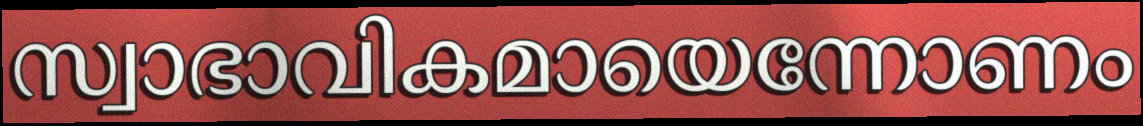
സ്വാഭാവികമായെന്നോണം